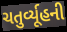
ચતુર્વ્યૂહની